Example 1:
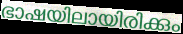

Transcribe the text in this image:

ഭാഷയിലായിരിക്കും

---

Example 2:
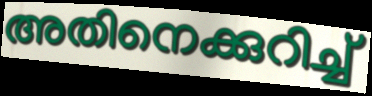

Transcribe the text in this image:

അതിനെക്കുറിച്ച്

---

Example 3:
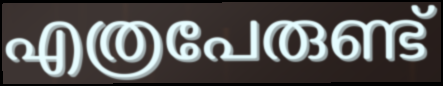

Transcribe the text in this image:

എത്രപേരുണ്ട്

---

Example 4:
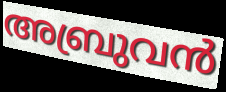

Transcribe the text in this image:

അബ്രുവൻ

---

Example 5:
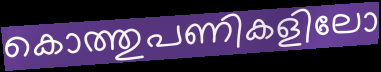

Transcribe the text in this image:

കൊത്തുപണികളിലോ